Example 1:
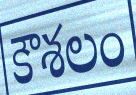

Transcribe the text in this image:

కౌశలం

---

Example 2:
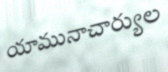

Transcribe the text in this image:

యామునాచార్యుల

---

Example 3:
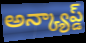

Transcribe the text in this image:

అన్క్యాప్డ్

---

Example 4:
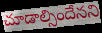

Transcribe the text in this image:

చూడాల్సిందేనని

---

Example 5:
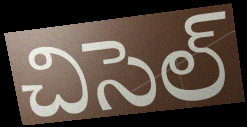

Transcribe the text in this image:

చిసెల్